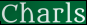
Charls